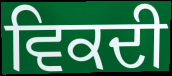
ਵਿਕਦੀ